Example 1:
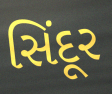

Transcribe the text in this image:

સિંદૂર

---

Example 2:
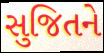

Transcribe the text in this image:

સુજિતને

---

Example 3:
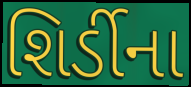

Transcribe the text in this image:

શિર્ડીના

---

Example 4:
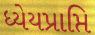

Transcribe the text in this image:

ધ્યેયપ્રાપ્તિ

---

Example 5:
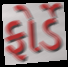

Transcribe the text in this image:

ફોર્ડે